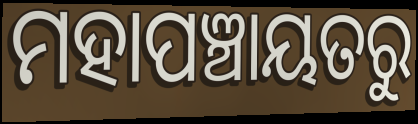
ମହାପଞ୍ଚାୟତରୁ